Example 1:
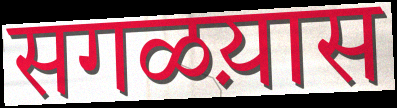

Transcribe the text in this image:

सगळय़ास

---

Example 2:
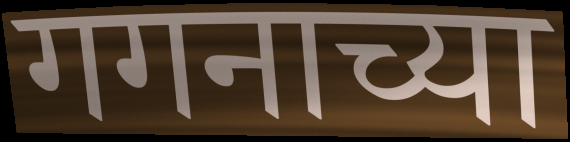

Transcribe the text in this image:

गगनाच्या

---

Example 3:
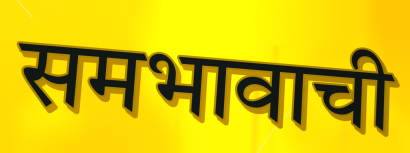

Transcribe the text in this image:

समभावाची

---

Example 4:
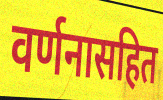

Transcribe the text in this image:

वर्णनासहित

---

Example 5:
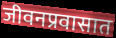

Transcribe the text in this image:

जीवनप्रवासात